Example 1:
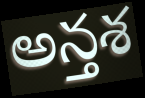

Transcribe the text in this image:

అన్తశ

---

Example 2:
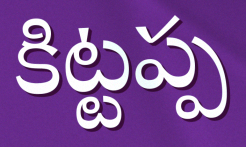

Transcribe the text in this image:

కిట్టప్ప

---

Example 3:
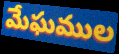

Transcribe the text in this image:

మేఘముల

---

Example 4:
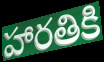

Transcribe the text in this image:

హారతికి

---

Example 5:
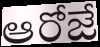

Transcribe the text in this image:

ఆరోజే